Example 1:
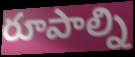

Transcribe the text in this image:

రూపాల్ని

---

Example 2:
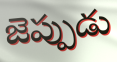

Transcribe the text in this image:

జెప్పుడు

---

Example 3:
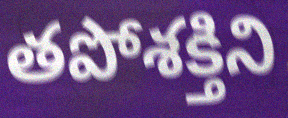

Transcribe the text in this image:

తపోశక్తిని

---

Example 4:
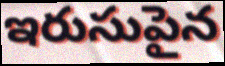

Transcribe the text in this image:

ఇరుసుపైన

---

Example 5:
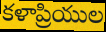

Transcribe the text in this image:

కళాప్రియుల